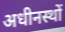
अधीनस्थों